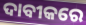
ଦାବୀକରେ